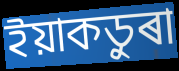
ইয়াকডুৰা